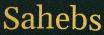
Sahebs